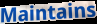
Maintains